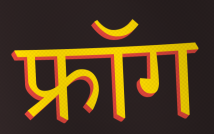
फ्रॉग